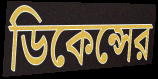
ডিকেন্সের